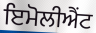
ਇਮੋਲੀਐਂਟ